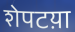
शेपटय़ा